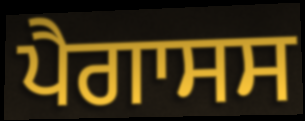
ਪੈਗਾਸਸ